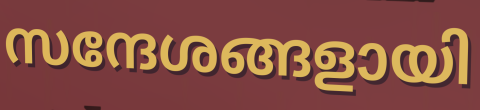
സന്ദേശങ്ങളായി